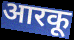
आरकू